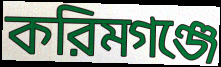
করিমগঞ্জে